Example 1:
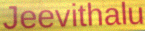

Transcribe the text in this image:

Jeevithalu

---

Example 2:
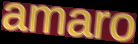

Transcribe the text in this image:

amaro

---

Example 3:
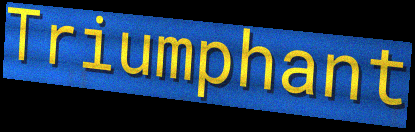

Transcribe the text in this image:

Triumphant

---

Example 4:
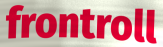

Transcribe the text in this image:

frontroll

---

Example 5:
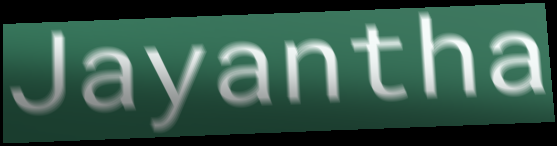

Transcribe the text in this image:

Jayantha